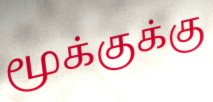
மூக்குக்கு